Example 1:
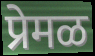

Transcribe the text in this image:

प्रेमळ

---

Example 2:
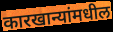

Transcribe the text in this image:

कारखान्यांमधील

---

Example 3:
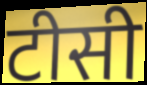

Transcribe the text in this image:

टीसी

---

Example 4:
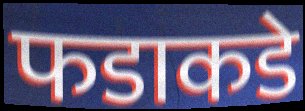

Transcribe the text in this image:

फडाकडे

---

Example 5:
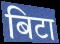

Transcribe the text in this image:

बिटा